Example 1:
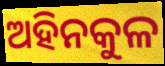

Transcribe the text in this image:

ଅହିନକୁଳ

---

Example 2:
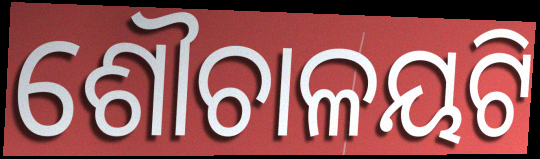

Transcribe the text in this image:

ଶୌଚାଳୟଟି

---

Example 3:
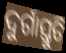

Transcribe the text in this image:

ଦୁର୍ଗାସ୍ତୁତି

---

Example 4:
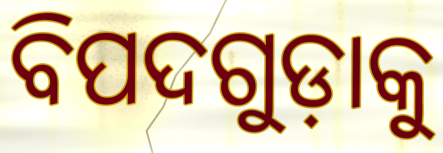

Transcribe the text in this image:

ବିପଦଗୁଡ଼ାକୁ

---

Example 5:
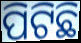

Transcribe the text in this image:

ପିଟିଛି